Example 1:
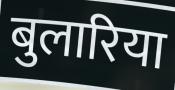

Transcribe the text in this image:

बुलारिया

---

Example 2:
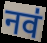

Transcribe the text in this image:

नव॑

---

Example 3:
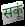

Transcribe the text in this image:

सकूं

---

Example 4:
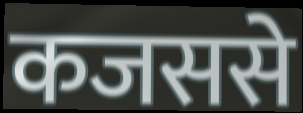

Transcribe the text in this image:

कजससे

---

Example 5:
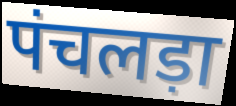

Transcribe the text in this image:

पंचलड़ा